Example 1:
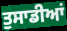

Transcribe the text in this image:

ਤੁਸਾਡੀਆਂ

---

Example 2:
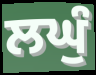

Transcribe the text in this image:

ਲਘੁੰ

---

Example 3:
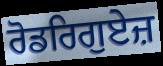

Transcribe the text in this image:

ਰੋਡਰਿਗੁਏਜ਼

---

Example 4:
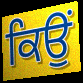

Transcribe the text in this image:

ਕਿਉੰ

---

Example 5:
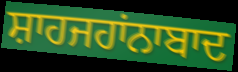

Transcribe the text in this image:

ਸ਼ਾਹਜਹਾਂਨਾਬਾਦ